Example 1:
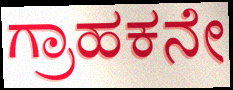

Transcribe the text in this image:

ಗ್ರಾಹಕನೇ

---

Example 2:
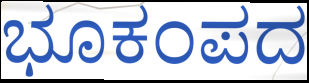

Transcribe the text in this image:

ಭೂಕಂಪದ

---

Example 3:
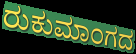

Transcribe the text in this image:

ರುಕುಮಾಂಗದ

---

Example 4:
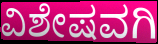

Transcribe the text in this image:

ವಿಶೇಷವಗಿ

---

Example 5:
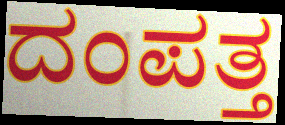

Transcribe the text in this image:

ದಂಪತ್ತ